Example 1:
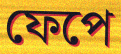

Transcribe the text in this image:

ফেপে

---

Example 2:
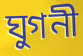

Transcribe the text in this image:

ঘুগনী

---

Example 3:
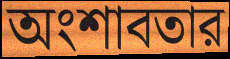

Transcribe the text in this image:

অংশাবতার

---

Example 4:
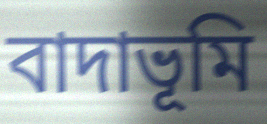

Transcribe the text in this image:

বাদাভূমি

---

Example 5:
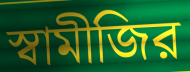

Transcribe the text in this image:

স্বামীজির